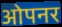
ओपनर